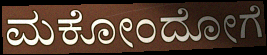
ಮಕೋಂದೋಗೆ